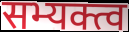
सभ्यक्त्व